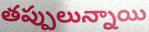
తప్పులున్నాయి